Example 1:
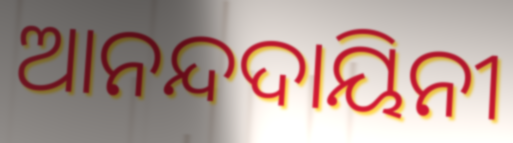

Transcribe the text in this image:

ଆନନ୍ଦଦାୟିନୀ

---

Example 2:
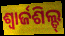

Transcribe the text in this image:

ଶ୍ୱାର୍ଜଶିଲ୍ଡ୍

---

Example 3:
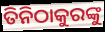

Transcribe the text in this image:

ତିନିଠାକୁରଙ୍କୁ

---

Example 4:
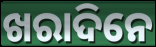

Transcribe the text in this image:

ଖରାଦିନେ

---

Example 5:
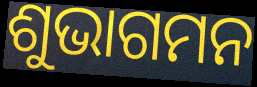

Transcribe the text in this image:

ଶୁଭାଗମନ